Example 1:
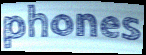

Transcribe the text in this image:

phones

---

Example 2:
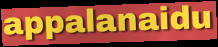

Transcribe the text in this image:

appalanaidu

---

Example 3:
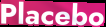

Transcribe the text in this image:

Placebo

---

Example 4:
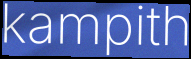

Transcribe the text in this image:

kampith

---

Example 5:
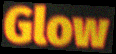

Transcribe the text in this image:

Glow